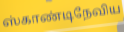
ஸ்காண்டிநேவிய